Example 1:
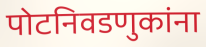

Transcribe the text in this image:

पोटनिवडणुकांना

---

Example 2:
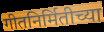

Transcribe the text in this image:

गीतनिर्मितीच्या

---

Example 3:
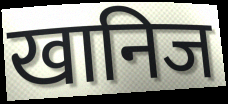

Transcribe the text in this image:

खानिज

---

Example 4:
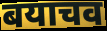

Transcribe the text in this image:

बयाचव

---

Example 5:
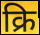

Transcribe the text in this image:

क्रि